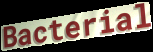
Bacterial